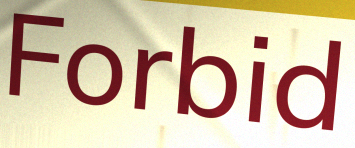
Forbid